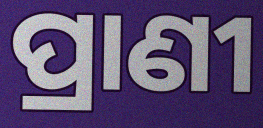
ପ୍ରାଣୀ